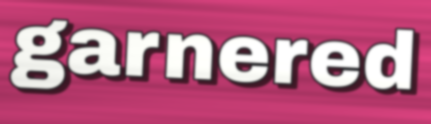
garnered